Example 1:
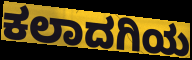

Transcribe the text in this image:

ಕಲಾದಗಿಯ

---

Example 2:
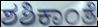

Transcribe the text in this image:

ಶಶಿಕಾಂತೆ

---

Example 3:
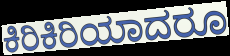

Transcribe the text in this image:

ಕಿರಿಕಿರಿಯಾದರೂ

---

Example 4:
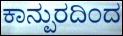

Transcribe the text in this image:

ಕಾನ್ಪುರದಿಂದ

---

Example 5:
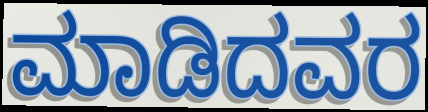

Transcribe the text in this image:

ಮಾಡಿದವರ